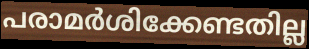
പരാമർശിക്കേണ്ടതില്ല